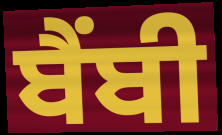
ਬੈਂਬੀ